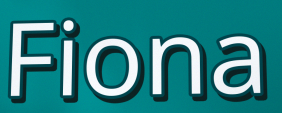
Fiona